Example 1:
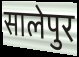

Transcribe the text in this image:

सालेपुर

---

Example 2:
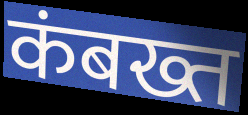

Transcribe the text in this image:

कंबख्त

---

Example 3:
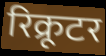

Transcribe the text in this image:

रिक्रूटर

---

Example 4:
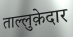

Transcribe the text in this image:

ताल्लुक़ेदार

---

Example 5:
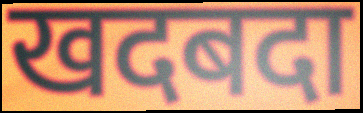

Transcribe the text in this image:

खदबदा